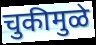
चुकीमुळे